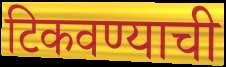
टिकवण्याची